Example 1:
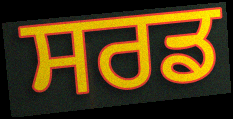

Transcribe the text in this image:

ਸਰਡ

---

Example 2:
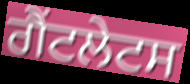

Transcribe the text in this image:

ਗੈਂਟਲੇਟਸ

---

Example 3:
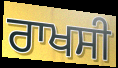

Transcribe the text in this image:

ਰਾਖਸੀ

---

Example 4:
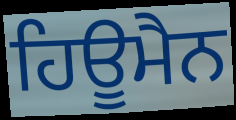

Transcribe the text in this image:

ਹਿਊਮੈਨ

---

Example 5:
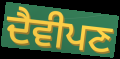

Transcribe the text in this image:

ਦੈਵੀਪਣ